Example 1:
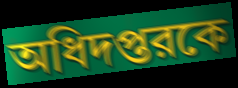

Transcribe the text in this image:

অধিদপ্তরকে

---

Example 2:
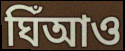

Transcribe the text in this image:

ঘিঁআও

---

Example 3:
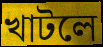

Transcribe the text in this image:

খাটলে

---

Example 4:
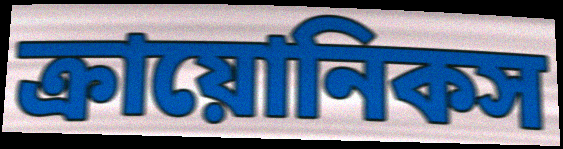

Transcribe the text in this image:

ক্রায়োনিকস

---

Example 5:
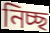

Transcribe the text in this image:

নিচ্ছ